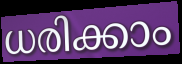
ധരിക്കാം